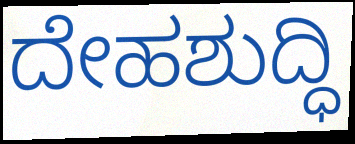
ದೇಹಶುದ್ಧಿ